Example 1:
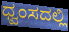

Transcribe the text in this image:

ಧ್ವಂಸದಲ್ಲಿ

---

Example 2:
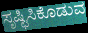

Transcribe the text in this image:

ಸೃಷ್ಟಿಸಿಕೊಡುವ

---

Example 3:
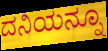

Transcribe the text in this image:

ದನಿಯನ್ನೂ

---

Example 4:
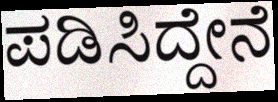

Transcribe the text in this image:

ಪಡಿಸಿದ್ದೇನೆ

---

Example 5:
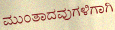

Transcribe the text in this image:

ಮುಂತಾದವುಗಳಿಗಾಗಿ